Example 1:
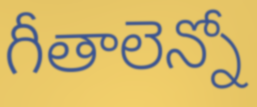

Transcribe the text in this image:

గీతాలెన్నో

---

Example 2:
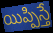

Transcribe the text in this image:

యిప్పిస్తే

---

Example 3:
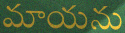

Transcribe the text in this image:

మాయను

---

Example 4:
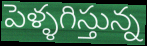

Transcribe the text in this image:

పెళ్ళగిస్తున్న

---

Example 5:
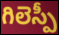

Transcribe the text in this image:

గిలెస్పీ